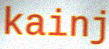
kainj